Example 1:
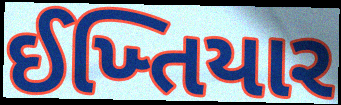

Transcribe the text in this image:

ઈખ્તિયાર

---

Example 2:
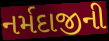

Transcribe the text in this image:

નર્મદાજીની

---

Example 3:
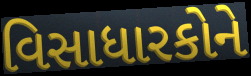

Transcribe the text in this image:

વિસાધારકોને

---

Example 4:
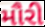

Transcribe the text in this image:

મૌરી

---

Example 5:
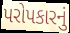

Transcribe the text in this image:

પરોપકારનું